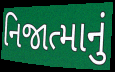
નિજાત્માનું